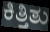
ಕಿತ್ತಿತು